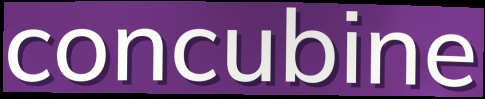
concubine